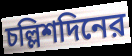
চল্লিশদিনের